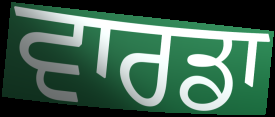
ਵਾਰਡਾ